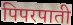
पिपरपाती